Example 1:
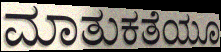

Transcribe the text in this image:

ಮಾತುಕತೆಯೂ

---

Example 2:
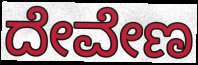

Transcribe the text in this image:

ದೇವೇಣ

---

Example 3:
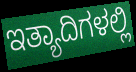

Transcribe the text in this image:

ಇತ್ಯಾದಿಗಳಲ್ಲಿ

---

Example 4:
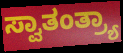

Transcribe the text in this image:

ಸ್ವಾತಂತ್ರ್ಯಾ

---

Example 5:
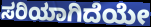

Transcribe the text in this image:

ಸರಿಯಾಗಿದೆಯೇ